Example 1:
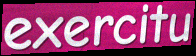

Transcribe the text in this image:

exercitu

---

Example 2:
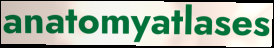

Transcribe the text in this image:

anatomyatlases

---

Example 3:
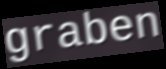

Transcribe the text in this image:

graben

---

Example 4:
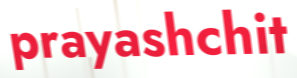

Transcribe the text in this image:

prayashchit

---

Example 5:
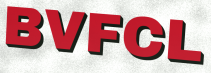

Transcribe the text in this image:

BVFCL